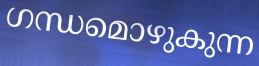
ഗന്ധമൊഴുകുന്ന